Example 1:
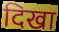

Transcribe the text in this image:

दिखा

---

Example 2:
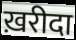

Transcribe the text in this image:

ख़रीदा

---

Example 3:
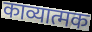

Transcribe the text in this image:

काव्यात्मक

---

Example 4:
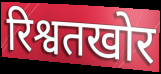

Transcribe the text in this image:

रिश्वतखोर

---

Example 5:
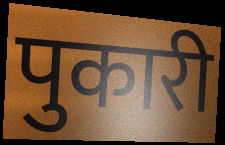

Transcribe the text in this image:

पुकारी